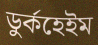
ডুর্কহেইম